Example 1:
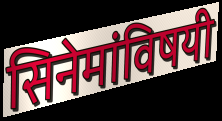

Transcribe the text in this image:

सिनेमांविषयी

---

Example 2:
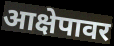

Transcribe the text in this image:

आक्षेपावर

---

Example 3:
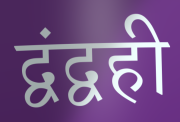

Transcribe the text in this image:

द्वंद्वही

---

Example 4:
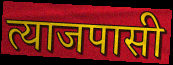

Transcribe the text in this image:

त्याजपासी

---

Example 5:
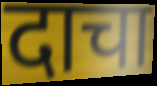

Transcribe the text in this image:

दाचा